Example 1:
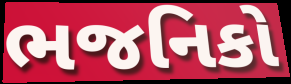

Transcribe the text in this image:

ભજનિકો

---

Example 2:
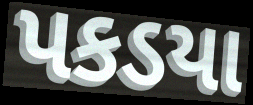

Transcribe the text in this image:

પકડયા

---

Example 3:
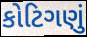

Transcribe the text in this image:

કોટિગણું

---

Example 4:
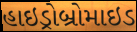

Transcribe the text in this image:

હાઇડ્રોબ્રોમાઇડ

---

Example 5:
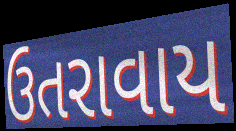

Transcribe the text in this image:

ઉતરાવાય